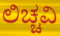
ಲಿಚ್ಚವಿ